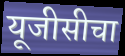
यूजीसीचा